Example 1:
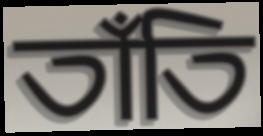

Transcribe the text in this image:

তাঁতি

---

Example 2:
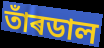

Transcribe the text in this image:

তাঁৰডাল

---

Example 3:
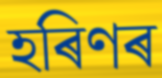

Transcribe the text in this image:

হৰিণৰ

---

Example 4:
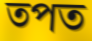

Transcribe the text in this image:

তপত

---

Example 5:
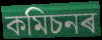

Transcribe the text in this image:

কমিচনৰ